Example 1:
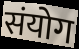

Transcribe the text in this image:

संयोग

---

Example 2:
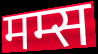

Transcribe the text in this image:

मम्स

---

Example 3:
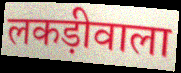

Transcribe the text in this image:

लकड़ीवाला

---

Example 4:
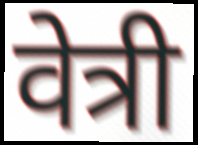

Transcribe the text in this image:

वेत्री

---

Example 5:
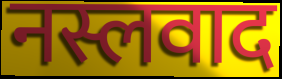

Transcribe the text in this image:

नस्लवाद